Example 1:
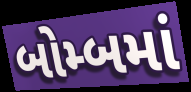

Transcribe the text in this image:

બોમ્બમાં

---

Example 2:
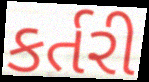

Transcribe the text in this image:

કર્તરી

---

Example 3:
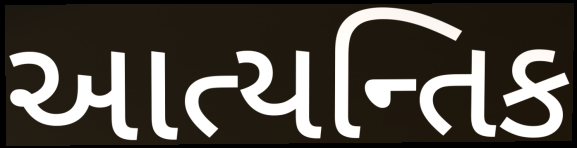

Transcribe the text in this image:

આત્યન્તિક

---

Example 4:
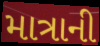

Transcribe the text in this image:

માત્રાની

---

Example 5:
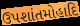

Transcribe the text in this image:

ઉપશાંતમોહાદિ